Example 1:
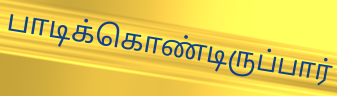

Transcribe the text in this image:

பாடிக்கொண்டிருப்பார்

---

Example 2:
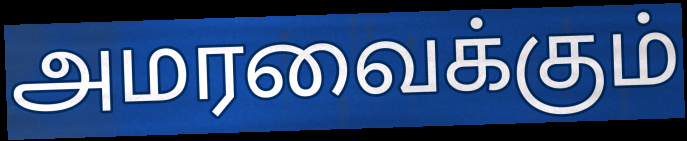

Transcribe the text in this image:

அமரவைக்கும்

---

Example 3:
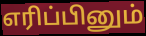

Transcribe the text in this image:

எரிப்பினும்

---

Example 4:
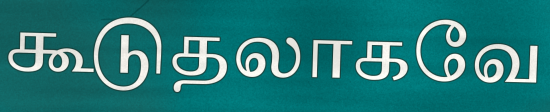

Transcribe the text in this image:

கூடுதலாகவே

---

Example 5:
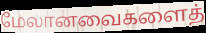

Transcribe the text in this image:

மேலானவைகளைத்